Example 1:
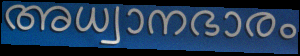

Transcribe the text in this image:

അധ്വാനഭാരം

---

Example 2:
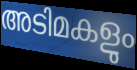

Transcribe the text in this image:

അടിമകളും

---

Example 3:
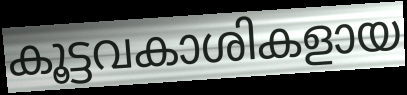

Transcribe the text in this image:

കൂട്ടവകാശികളായ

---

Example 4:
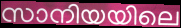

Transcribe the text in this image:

സാനിയയിലെ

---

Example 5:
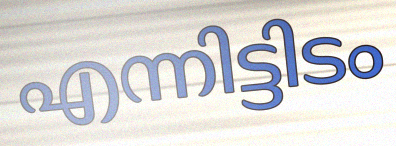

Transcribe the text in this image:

എന്നിട്ടിടം